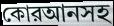
কোরআনসহ